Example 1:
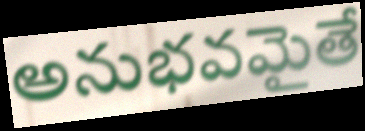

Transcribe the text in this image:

అనుభవమైతే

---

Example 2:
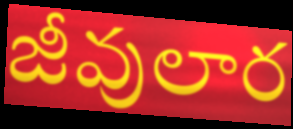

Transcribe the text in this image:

జీవులార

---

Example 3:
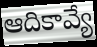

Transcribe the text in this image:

ఆదికావ్యే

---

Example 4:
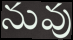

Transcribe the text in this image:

నువు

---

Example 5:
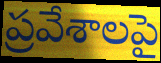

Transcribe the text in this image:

ప్రవేశాలపై